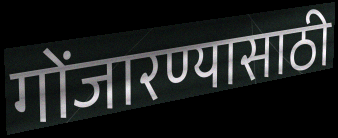
गोंजारण्यासाठी